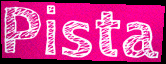
Pista